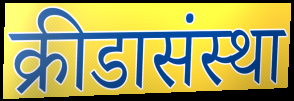
क्रीडासंस्था